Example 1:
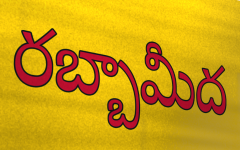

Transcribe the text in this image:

రబ్బామీద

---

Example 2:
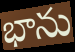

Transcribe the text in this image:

భాను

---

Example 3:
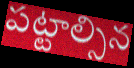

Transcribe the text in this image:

పట్టాల్సిన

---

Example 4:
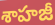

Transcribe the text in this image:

శాహజీ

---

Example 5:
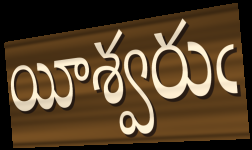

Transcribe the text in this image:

యీశ్వరుఁ